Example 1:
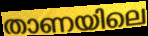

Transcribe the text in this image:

താണയിലെ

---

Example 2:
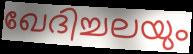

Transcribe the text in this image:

ഖേദിച്ചലയും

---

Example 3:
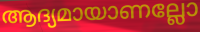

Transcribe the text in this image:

ആദ്യമായാണല്ലോ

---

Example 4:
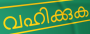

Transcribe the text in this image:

വഹിക്കുക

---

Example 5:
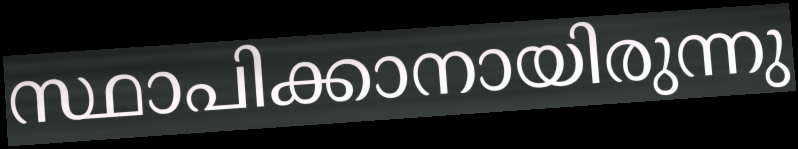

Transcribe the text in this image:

സ്ഥാപിക്കാനായിരുന്നു